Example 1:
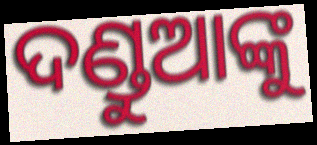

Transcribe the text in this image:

ଦଣ୍ଡୁଆଙ୍କୁ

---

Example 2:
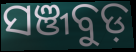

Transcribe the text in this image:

ସଞ୍ଜବୁଡ଼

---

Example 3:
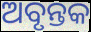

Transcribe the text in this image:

ଅବୃନ୍ତକ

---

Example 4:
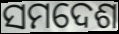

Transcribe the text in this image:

ସମଦେଶ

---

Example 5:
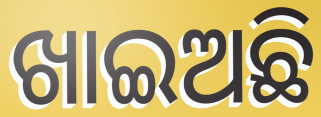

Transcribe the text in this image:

ଖାଇଅଛି